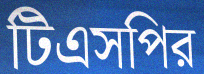
টিএসপির